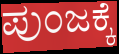
ಪುಂಜಕ್ಕೆ